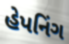
હેપનિંગ